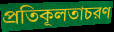
প্রতিকূলতাচরণ